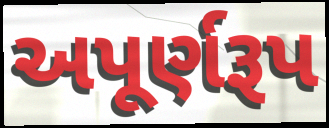
અપૂર્ણરૂપ